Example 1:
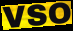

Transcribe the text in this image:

VSO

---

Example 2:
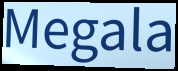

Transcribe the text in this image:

Megala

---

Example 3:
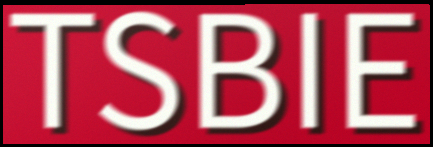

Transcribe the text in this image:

TSBIE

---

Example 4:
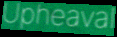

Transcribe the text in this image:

Upheaval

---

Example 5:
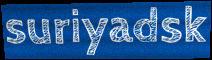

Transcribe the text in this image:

suriyadsk